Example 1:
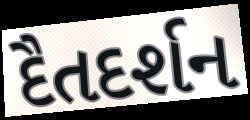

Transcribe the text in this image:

દૈતદર્શન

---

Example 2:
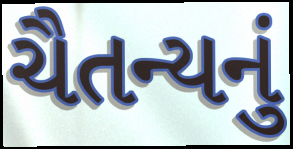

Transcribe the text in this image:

ચૈતન્યનું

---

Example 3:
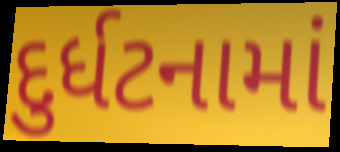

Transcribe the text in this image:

દુર્ધટનામાં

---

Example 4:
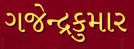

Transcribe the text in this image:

ગજેન્દ્રકુમાર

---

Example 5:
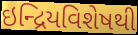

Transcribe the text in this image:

ઇન્દ્રિયવિશેષથી